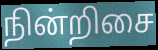
நின்றிசை